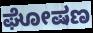
ಘೋಷಣ